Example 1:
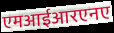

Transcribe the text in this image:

एमआईआरएनए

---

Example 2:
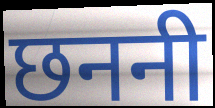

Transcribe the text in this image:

छननी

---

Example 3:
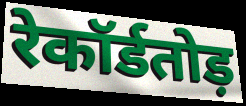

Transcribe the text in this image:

रेकॉर्डतोड़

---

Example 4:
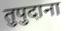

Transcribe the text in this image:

तुपुदाना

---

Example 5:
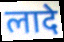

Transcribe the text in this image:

लादे